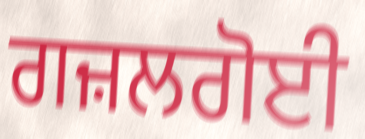
ਗਜ਼ਲਗੋਈ